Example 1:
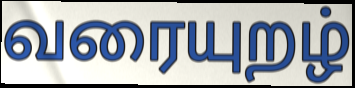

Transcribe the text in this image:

வரையுறழ்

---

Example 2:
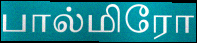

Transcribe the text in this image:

பால்மிரோ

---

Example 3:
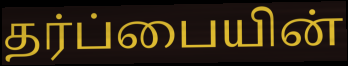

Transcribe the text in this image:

தர்ப்பையின்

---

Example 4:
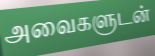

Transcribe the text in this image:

அவைகளுடன்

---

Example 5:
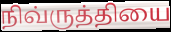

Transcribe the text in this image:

நிவ்ருத்தியை